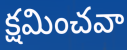
క్షమించవా